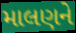
માલણને